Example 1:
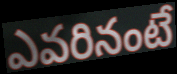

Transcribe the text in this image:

ఎవరినంటే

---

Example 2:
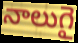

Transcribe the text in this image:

నాలుగై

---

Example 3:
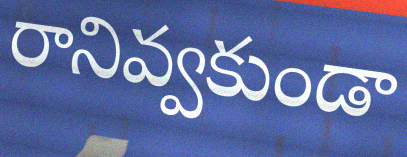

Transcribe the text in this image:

రానివ్వకుండా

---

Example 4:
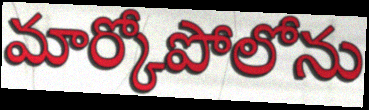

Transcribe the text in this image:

మార్కోపోలోను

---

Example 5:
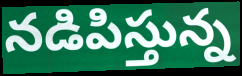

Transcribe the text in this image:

నడిపిస్తున్న